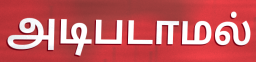
அடிபடாமல்